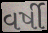
વર્ષી